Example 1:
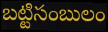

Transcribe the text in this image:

బట్టిసంబులం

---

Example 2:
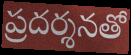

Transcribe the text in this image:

ప్రదర్శనతో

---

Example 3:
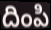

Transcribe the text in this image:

దింపి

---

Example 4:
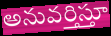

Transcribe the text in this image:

అనువర్తిస్తూ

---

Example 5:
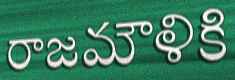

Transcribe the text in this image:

రాజమౌళికి